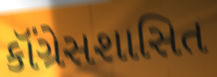
કૉંગ્રેસશાસિત